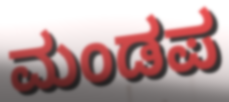
ಮಂಡಪ